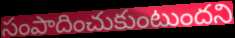
సంపాదించుకుంటుందని